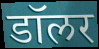
डॉलर